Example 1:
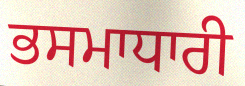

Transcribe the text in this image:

ਭਸਮਾਧਾਰੀ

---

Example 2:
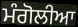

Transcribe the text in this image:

ਮੰਗੋਲੀਆ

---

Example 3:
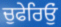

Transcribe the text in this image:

ਚੁਫੇਰਿਓੁਂ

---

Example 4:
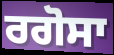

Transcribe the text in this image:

ਰਗੋਸਾ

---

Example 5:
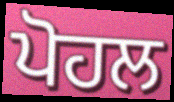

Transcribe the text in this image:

ਪੋਹਲ